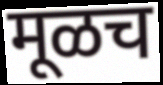
मूळच